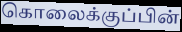
கொலைக்குப்பின்